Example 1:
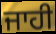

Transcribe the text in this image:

ਜਾਹੀ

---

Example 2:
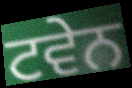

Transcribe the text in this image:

ਟਵੇਨ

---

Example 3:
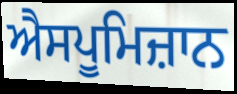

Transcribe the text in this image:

ਐਸਪੂਮਿਜ਼ਾਨ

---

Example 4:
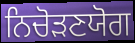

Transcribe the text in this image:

ਨਿਚੋੜਣਯੋਗ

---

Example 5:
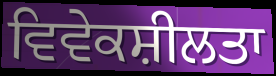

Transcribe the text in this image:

ਵਿਵੇਕਸ਼ੀਲਤਾ